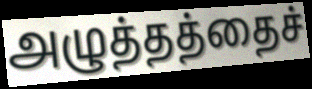
அழுத்தத்தைச்